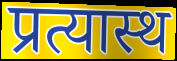
प्रत्यास्थ